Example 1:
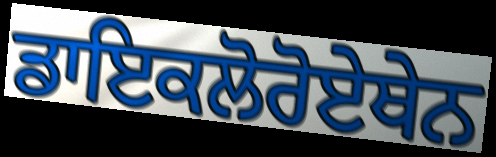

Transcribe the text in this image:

ਡਾਇਕਲੋਰੋਏਥੇਨ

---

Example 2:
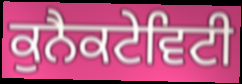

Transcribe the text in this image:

ਕੁਨੈਕਟੇਵਿਟੀ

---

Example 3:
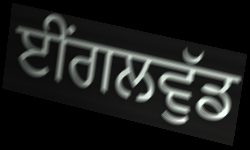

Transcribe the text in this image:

ਈਂਗਲਵੁੱਡ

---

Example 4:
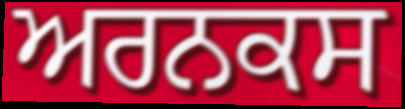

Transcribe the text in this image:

ਅਰਨਕਸ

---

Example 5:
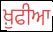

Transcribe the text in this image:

ਖ਼ੁਫੀਆ